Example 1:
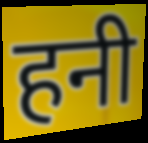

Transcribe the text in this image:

हनी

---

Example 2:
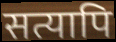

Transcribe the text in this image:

सत्यापि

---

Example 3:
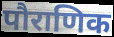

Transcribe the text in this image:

पौराणिक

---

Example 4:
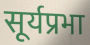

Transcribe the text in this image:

सूर्यप्रभा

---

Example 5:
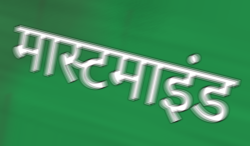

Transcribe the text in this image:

मास्टमाइंड